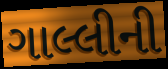
ગાલ્લીની